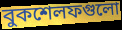
বুকশেলফগুলো